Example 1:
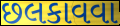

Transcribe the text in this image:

છલકાવવા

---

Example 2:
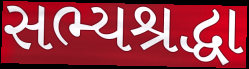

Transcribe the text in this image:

સભ્યશ્રદ્ધા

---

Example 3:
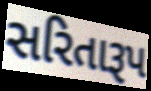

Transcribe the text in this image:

સરિતારૂપ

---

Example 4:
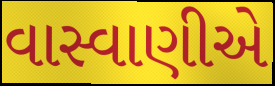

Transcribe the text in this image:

વાસ્વાણીએ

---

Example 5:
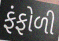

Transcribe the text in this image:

ફંફોળી